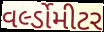
વર્લ્ડોમીટર